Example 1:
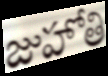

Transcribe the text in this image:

జుహోతి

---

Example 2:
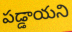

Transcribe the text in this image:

పడ్డాయని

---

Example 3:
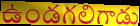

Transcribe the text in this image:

ఉండగలిగాడు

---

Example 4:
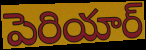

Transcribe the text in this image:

పెరియార్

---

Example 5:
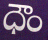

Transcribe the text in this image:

ధౌం